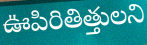
ఊపిరితిత్తులని